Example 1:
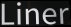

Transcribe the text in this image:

Liner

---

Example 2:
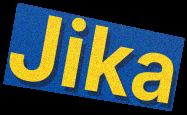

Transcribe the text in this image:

Jika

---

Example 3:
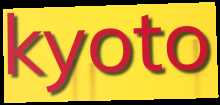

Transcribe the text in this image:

kyoto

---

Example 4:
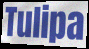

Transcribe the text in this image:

Tulipa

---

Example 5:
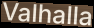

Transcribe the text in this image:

Valhalla